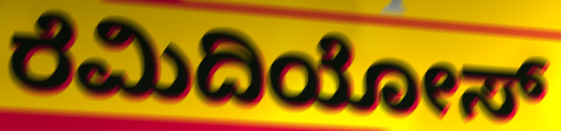
ರೆಮಿದಿಯೋಸ್